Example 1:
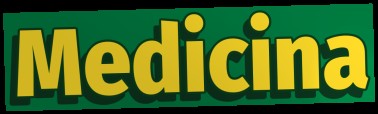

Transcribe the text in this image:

Medicina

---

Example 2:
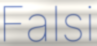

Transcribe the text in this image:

Falsi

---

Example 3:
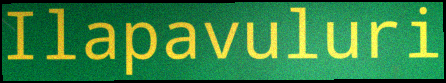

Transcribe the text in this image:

Ilapavuluri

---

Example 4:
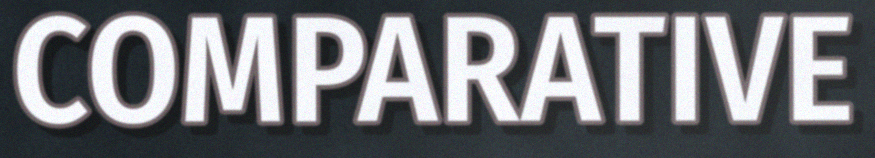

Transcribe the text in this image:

COMPARATIVE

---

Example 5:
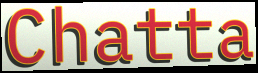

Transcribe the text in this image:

Chatta